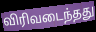
விரிவடைந்தது